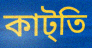
কাট্তি